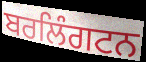
ਬਰਲਿੰਗਟਨ